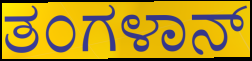
ತಂಗಳಾನ್